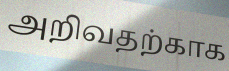
அறிவதற்காக